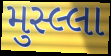
મુસ્લ્લા